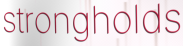
strongholds